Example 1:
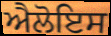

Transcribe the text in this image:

ਐਲੋਇਸ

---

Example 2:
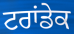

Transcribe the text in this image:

ਟਰਾਂਡੇਕ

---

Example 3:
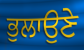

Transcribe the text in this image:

ਭੁਲਾਉਣੇ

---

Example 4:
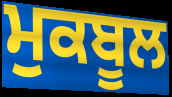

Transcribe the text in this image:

ਮੁਕਬੂਲ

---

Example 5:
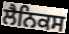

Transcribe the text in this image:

ਲੈਨਿਕਸ